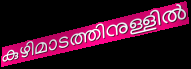
കുഴിമാടത്തിനുള്ളിൽ